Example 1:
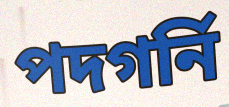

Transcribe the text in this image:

পদগর্নি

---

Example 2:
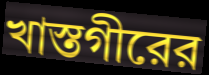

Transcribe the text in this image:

খাস্তগীরের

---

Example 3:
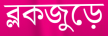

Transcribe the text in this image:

ব্লকজুড়ে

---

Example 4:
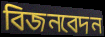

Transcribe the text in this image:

বিজনবেদন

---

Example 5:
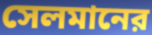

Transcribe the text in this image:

সেলমানের